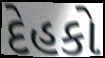
દેહકો